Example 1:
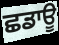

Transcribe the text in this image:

ਛਡਾਊ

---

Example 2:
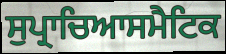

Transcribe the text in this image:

ਸੁਪ੍ਰਾਚਿਆਸਮੈਟਿਕ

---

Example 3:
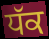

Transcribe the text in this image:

ਧੱਕ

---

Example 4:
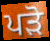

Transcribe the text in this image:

ਪੜੋ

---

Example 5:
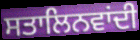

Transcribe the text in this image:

ਸਤਾਲਿਨਵਾਂਦੀ